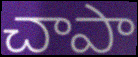
చాపా